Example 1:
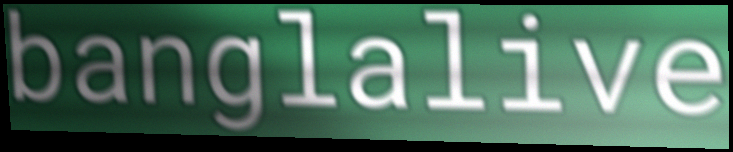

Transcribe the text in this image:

banglalive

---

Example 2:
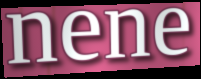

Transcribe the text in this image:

nene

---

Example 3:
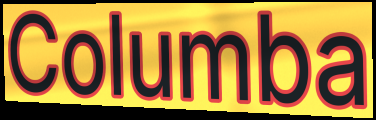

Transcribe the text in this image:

Columba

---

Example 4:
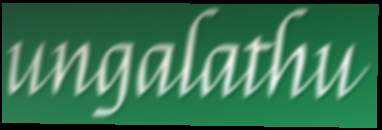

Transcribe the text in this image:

ungalathu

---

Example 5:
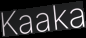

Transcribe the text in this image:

Kaaka